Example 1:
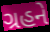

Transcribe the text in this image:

ગ્રહને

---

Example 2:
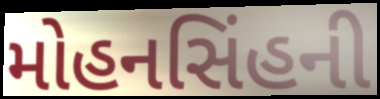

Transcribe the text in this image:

મોહનસિંહની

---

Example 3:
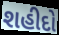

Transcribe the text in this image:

શહીદો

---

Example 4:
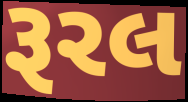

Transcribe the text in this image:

રૂરલ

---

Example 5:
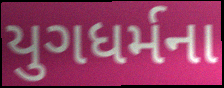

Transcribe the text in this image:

યુગધર્મના